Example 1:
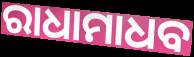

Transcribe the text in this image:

ରାଧାମାଧବ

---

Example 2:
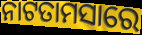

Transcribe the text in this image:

ନାଟତାମସାରେ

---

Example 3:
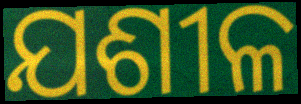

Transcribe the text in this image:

ଯଶୀଳ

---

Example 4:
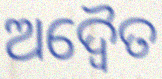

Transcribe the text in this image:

ଅଦ୍ୱୈତ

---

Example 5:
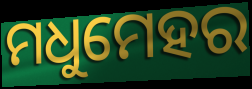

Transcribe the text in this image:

ମଧୁମେହର